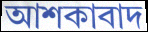
আশকাবাদ